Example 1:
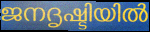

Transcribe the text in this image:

ജനദൃഷ്ടിയിൽ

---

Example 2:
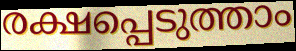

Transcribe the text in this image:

രക്ഷപ്പെടുത്താം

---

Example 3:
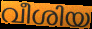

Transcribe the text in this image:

വീശിയ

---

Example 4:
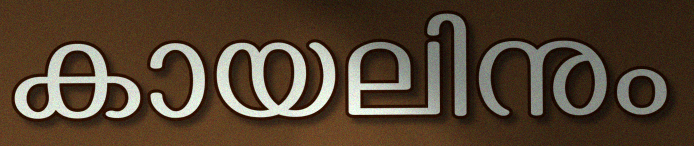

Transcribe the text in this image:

കായലിനും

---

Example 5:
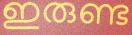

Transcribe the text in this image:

ഇരുണ്ട